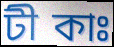
টীকাঃ